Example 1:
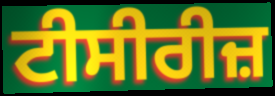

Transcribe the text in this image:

ਟੀਸੀਰੀਜ਼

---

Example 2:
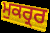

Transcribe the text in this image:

ਮੁਕਰ੍ਰਰ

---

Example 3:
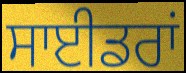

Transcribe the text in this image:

ਸਾਈਡਰਾਂ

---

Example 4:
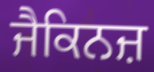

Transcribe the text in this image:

ਜੈਕਿਨਜ਼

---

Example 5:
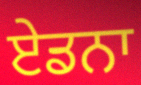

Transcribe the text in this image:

ਏਡਨਾ